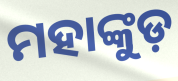
ମହାଙ୍କୁଡ଼